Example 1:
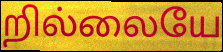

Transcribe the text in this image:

றில்லையே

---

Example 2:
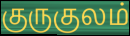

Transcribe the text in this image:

குருகுலம்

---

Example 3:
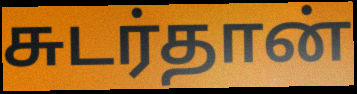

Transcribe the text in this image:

சுடர்தான்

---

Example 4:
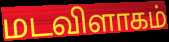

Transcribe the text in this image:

மடவிளாகம்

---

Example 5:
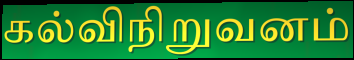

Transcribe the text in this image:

கல்விநிறுவனம்